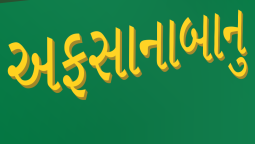
અફસાનાબાનુ